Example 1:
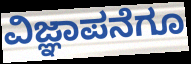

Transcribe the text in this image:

ವಿಜ್ಞಾಪನೆಗೂ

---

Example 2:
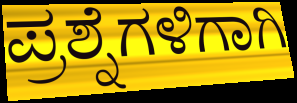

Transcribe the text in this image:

ಪ್ರಶ್ನೆಗಳಿಗಾಗಿ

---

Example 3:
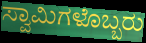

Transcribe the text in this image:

ಸ್ವಾಮಿಗಳೊಬ್ಬರು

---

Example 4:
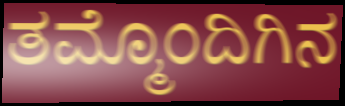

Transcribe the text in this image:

ತಮ್ಮೊಂದಿಗಿನ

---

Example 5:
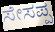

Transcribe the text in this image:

ಸೇಸಪ್ಪ